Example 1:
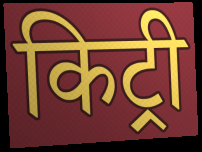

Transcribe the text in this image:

किट्री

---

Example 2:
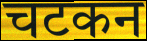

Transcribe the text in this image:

चटकन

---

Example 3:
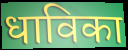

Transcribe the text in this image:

धाविका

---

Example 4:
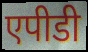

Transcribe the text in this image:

एपीडी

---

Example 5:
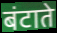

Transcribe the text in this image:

बंटाते